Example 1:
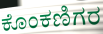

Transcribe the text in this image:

ಕೊಂಕಣಿಗರ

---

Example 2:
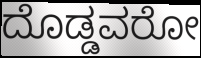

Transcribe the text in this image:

ದೊಡ್ಡವರೋ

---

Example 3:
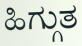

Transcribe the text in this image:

ಹಿಗ್ಗುತ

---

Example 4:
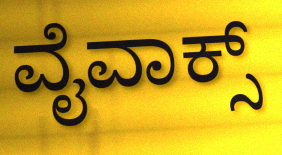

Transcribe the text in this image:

ವೈವಾಕ್ಸ್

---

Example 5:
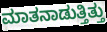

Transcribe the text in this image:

ಮಾತನಾಡುತ್ತಿತ್ತು